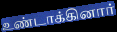
உண்டாக்கினார்